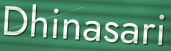
Dhinasari